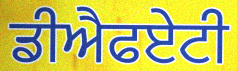
ਡੀਐਫਏਟੀ